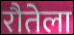
रौतेला